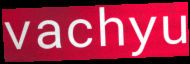
vachyu